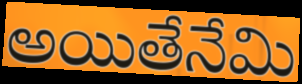
అయితేనేమి